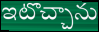
ఇటొచ్చాను